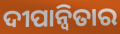
ଦୀପାନ୍ୱିତାର